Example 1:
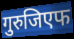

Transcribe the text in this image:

गुरुजिएफ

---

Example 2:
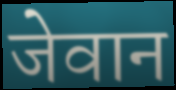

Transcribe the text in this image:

जेवान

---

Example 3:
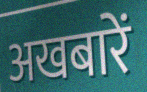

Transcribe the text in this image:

अखबारें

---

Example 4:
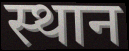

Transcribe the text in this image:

स्‍थान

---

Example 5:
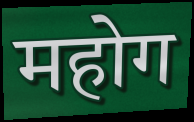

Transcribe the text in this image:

महोग